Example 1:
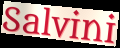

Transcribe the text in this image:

Salvini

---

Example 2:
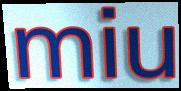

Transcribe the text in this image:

miu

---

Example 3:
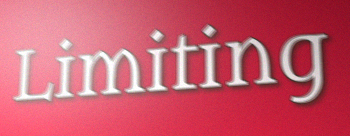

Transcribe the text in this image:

Limiting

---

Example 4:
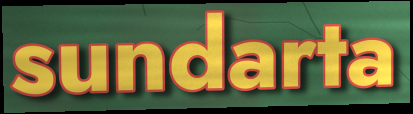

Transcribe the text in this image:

sundarta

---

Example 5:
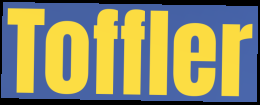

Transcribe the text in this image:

Toffler